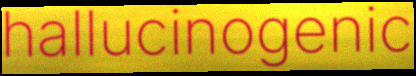
hallucinogenic